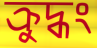
ক্রুদ্ধং